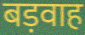
बड़वाह